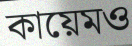
কায়েমও